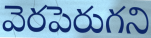
వెరపెరుగని